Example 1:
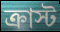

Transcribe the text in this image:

ক্রাস্ট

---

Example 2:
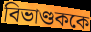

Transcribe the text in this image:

বিভাণ্ডককে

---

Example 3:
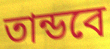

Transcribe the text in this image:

তান্ডবে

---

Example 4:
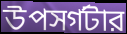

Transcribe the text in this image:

উপসর্গটার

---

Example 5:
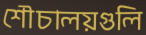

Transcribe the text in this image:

শৌচালয়গুলি